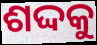
ଶଦ୍ଦକୁ